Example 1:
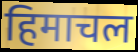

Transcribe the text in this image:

हिमाचल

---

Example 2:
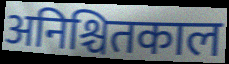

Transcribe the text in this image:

अनिश्चितकाल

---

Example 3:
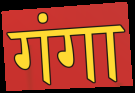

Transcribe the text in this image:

गंगा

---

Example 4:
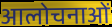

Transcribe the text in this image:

आलोचनाओं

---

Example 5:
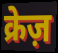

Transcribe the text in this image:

क्रेज़